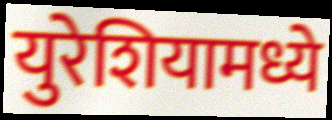
युरेशियामध्ये